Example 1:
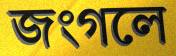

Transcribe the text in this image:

জংগলে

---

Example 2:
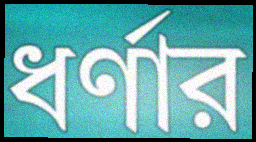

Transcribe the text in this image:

ধর্ণার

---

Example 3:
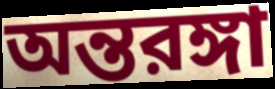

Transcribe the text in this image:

অন্তরঙ্গা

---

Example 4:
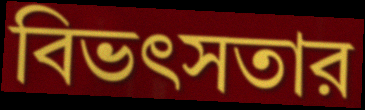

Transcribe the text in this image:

বিভৎসতার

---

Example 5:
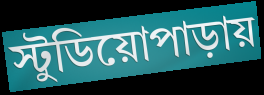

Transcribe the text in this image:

স্টুডিয়োপাড়ায়